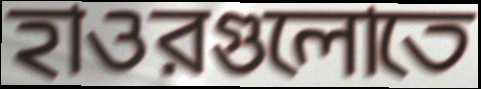
হাওরগুলোতে